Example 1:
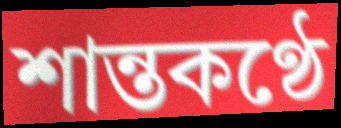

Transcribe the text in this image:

শান্তকণ্ঠে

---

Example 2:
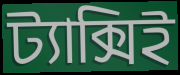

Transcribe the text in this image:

ট্যাক্সিই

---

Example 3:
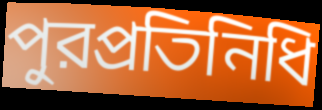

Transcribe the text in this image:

পুরপ্রতিনিধি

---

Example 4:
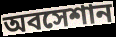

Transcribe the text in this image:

অবসেশান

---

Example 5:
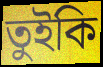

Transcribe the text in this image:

তুইকি